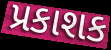
પ્રકાશક